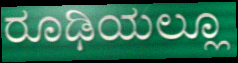
ರೂಢಿಯಲ್ಲೂ